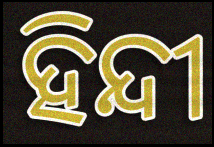
ହିନ୍ଦୀ